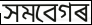
সমবেগৰ